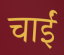
चाईं